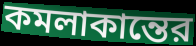
কমলাকান্তের